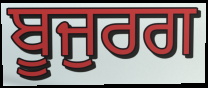
ਬੂਜੁਰਗ